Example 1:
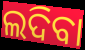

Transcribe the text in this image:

ଲଦିବା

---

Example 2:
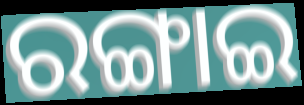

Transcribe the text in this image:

ରଙ୍ଗାଇ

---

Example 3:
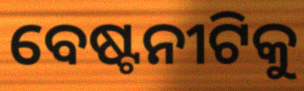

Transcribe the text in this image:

ବେଷ୍ଟନୀଟିକୁ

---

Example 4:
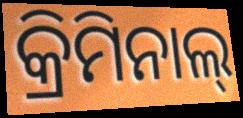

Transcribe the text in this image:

କ୍ରିମିନାଲ୍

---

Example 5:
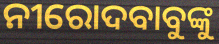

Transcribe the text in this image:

ନୀରୋଦବାବୁଙ୍କୁ